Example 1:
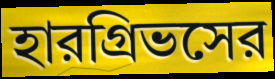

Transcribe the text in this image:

হারগ্রিভসের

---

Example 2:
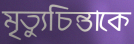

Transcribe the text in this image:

মৃত্যুচিন্তাকে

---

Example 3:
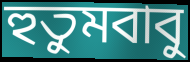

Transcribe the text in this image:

হুতুমবাবু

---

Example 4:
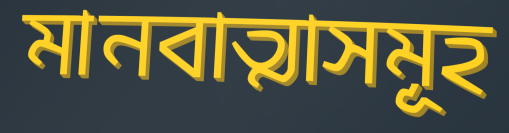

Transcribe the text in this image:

মানবাত্মাসমূহ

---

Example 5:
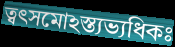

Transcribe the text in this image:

ত্বৎসমোঽস্ত্যভ্যধিকঃ